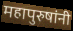
महापुरुषांनी